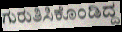
ಗುರುತಿಸಿಕೊಂಡಿದ್ದ